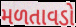
મળતાવડો